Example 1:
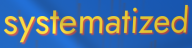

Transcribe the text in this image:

systematized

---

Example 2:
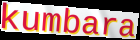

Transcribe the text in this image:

kumbara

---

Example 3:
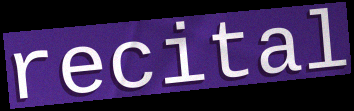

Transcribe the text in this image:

recital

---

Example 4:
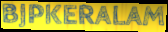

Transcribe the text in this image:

BJPKERALAM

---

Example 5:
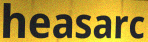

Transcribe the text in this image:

heasarc